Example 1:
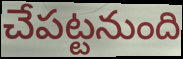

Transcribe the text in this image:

చేపట్టనుంది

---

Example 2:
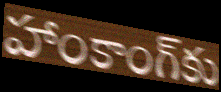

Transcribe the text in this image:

హాంకాంగ్‌కు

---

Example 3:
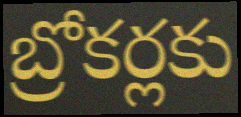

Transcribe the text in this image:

బ్రోకర్లకు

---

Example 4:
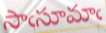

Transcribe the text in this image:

సాఁసూమాఁ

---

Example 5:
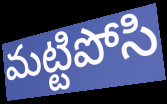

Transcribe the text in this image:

మట్టిపోసి